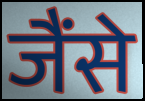
जैंसे